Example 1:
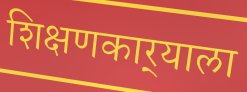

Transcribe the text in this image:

शिक्षणकार्याला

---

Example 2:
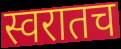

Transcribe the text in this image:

स्वरातच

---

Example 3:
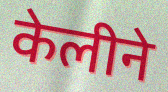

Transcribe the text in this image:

केलीने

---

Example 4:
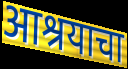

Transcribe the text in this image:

आश्रयाचा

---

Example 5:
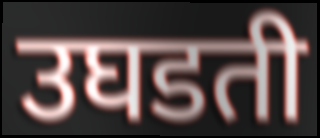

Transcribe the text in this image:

उघडती